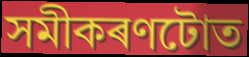
সমীকৰণটোত